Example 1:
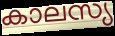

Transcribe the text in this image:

കാലസ്യ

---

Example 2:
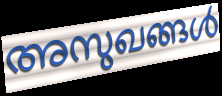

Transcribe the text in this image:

അസുഖങ്ങൾ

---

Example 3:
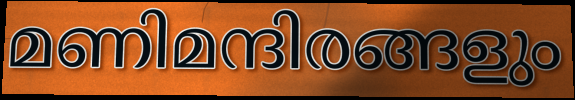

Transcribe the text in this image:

മണിമന്ദിരങ്ങളും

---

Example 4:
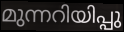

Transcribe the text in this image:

മുന്നറിയിപ്പു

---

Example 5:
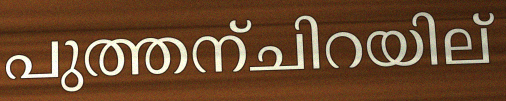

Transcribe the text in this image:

പുത്തന്ചിറയില്